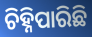
ଚିହ୍ନିପାରିଛି